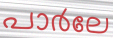
പാർലേ